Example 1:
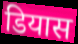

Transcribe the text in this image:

डियास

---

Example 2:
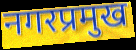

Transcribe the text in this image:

नगरप्रमुख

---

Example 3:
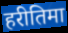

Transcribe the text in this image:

हरीतिमा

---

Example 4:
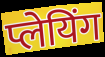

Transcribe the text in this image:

प्लेयिंग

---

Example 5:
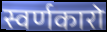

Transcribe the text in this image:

स्वर्णकारो